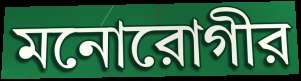
মনোরোগীর